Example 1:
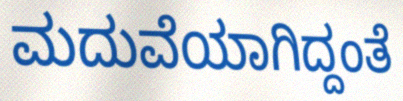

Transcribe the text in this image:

ಮದುವೆಯಾಗಿದ್ದಂತೆ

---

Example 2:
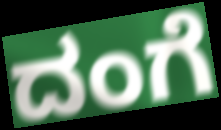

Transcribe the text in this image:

ದಂಗೆ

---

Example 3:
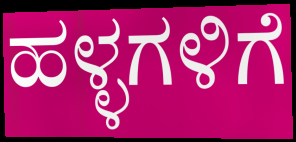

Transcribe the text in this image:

ಹಳ್ಳಗಳಿಗೆ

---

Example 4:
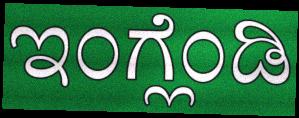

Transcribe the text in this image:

ಇಂಗ್ಲೆಂಡಿ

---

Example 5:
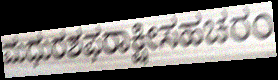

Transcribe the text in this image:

ಮಧುರಶಫರಾಕ್ಷೀಸಹಚರಂ